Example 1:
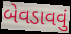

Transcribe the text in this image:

બેવડાવવું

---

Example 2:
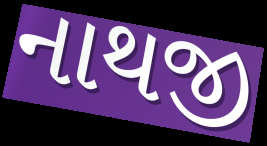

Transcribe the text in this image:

નાથજી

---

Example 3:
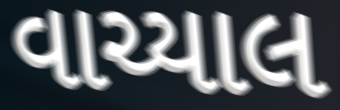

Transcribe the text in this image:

વાચ્યાલ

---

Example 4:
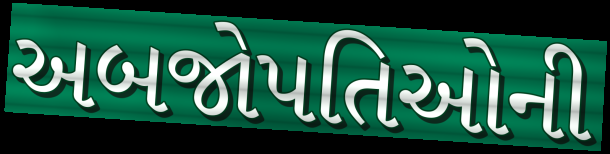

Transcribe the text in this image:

અબજોપતિઓની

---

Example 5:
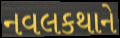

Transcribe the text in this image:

નવલકથાને